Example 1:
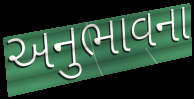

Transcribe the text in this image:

અનુભાવના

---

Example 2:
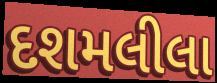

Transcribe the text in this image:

દશમલીલા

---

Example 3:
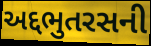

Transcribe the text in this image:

અદ્દભુતરસની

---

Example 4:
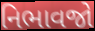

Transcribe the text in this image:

નિભાવજો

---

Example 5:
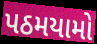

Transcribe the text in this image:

પઠમયામો